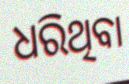
ଧରିଥିବା